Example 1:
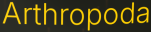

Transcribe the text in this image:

Arthropoda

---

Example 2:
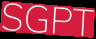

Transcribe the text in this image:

SGPT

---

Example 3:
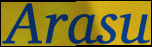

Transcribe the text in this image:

Arasu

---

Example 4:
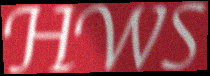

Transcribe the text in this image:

HWS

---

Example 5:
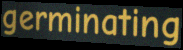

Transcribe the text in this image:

germinating